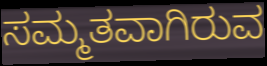
ಸಮ್ಮತವಾಗಿರುವ